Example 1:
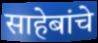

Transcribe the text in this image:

साहेबांचे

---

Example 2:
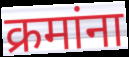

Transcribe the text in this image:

क्रमांना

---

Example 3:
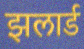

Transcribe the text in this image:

झलार्ड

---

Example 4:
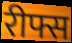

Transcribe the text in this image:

रीफ्स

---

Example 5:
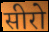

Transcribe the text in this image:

सीरो